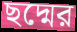
ছদ্মের